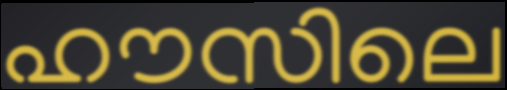
ഹൗസിലെ